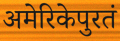
अमेरिकेपुरतं